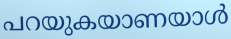
പറയുകയാണയാൾ